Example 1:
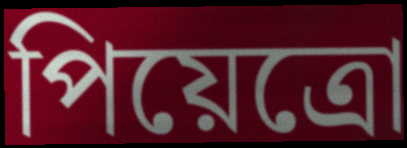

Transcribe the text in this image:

পিয়েত্রো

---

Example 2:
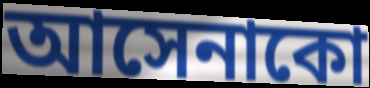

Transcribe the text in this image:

আসেনাকো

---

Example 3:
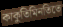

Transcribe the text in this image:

কাকুতিমিনতিতে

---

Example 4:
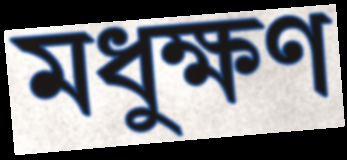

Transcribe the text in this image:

মধুক্ষণ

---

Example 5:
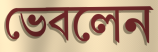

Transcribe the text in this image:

ভেবলেন